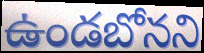
ఉండబోనని